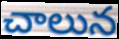
చాలున